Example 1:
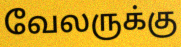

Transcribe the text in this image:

வேலருக்கு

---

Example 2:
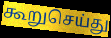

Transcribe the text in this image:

கூறுசெய்து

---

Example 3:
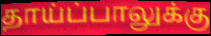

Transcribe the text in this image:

தாய்ப்பாலுக்கு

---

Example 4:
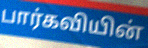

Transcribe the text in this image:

பார்கவியின்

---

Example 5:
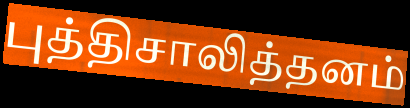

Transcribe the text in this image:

புத்திசாலித்தனம்